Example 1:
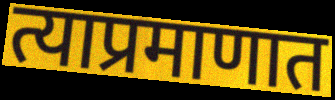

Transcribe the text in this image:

त्याप्रमाणात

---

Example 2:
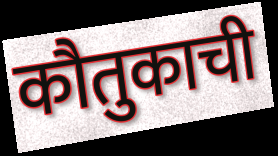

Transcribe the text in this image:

कौतुकाची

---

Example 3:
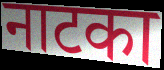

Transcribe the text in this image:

नाटका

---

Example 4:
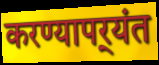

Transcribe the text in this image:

करण्यापर्यंत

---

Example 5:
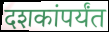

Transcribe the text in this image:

दशकांपर्यंत